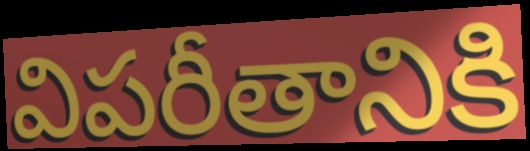
విపరీతానికి